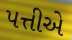
પત્તીએ